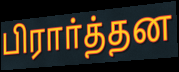
பிரார்த்தன